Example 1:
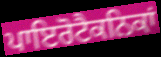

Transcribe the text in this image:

ਪਾਇਰੋਟੈਕਨਿਕਾਂ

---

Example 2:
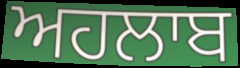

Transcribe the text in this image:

ਅਹਲਾਬ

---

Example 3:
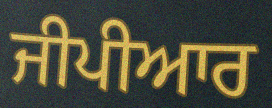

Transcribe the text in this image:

ਜੀਪੀਆਰ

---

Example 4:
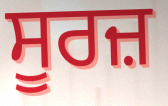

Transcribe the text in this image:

ਸੂਰਜ਼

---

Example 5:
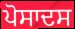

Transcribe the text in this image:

ਪੋਸਾਦਸ